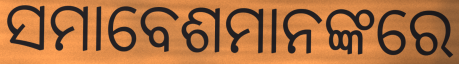
ସମାବେଶମାନଙ୍କରେ